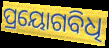
ପ୍ରୟୋଗବିଧି